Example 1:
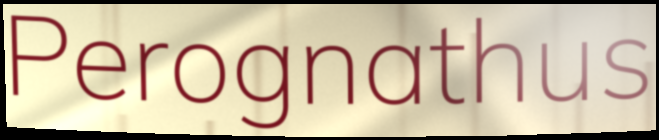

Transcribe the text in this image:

Perognathus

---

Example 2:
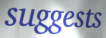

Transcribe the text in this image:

suggests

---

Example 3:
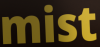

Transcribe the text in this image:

mist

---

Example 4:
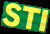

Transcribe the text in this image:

STI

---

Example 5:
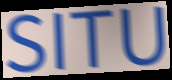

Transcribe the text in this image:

SITU